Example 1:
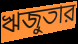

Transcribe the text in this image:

ঋজুতার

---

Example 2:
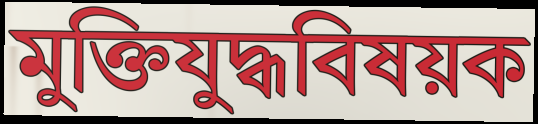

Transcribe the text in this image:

মুক্তিযুদ্ধবিষয়ক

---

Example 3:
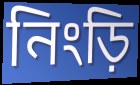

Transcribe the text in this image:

নিংড়ি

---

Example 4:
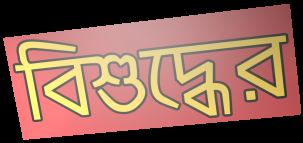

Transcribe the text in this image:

বিশুদ্ধের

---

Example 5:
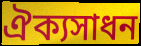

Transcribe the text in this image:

ঐক্যসাধন